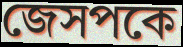
জেসপকে